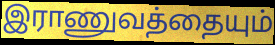
இராணுவத்தையும்